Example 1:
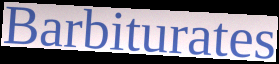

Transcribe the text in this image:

Barbiturates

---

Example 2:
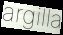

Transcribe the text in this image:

argilla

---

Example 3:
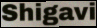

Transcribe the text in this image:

Shigavi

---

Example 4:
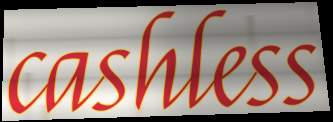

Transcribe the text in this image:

cashless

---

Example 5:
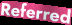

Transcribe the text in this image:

Referred